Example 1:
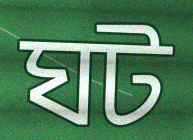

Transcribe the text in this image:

ঘট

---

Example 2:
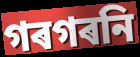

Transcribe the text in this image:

গৰগৰনি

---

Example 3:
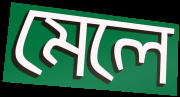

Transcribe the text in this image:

মেলে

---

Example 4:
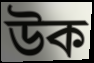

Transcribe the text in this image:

উক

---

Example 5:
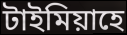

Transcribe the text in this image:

টাইমিয়াহে